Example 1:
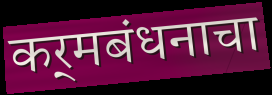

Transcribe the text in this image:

कर्मबंधनाचा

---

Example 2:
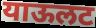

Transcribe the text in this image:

याऊलट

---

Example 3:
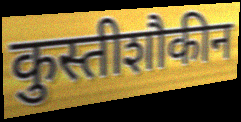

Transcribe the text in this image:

कुस्तीशौकीन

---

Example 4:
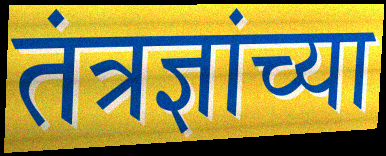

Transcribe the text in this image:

तंत्रज्ञांच्या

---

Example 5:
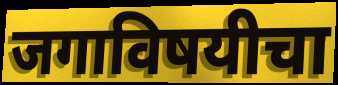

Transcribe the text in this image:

जगाविषयीचा